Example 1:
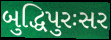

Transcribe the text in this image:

બુદ્ધિપુરઃસર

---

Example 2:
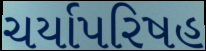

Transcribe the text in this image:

ચર્યાપરિષહ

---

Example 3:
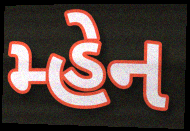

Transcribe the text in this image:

મ્હેન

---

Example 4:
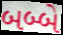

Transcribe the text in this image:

બબ્બે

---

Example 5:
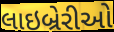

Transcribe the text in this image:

લાઇબ્રેરીઓ